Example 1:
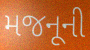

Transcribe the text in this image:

મજનૂની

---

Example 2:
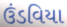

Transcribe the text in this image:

ઉંડવિયા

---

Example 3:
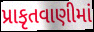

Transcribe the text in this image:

પ્રાકૃતવાણીમાં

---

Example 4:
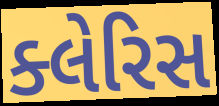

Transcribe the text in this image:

ક્લેરિસ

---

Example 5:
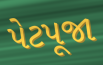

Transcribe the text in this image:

પેટપૂજા